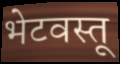
भेटवस्तू